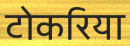
टोकरिया